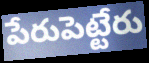
పేరుపెట్టేరు